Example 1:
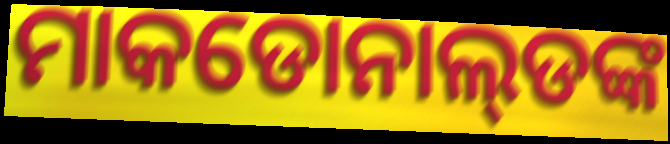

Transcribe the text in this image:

ମାକଡୋନାଲ୍‍ଡଙ୍କ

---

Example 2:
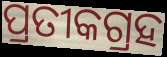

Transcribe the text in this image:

ପ୍ରତୀକଗ୍ରହ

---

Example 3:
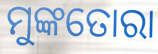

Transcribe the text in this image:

ମୁଙ୍କତୋରା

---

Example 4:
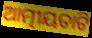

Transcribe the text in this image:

ଆତ୍ମୀୟତାଟି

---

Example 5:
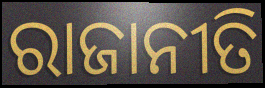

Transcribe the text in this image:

ରାଜାନୀତି